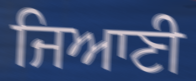
ਜਿਆਣੀ